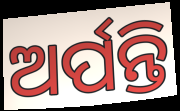
ଅର୍ପନ୍ତି